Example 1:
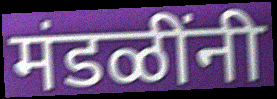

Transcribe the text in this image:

मंडळींनी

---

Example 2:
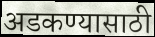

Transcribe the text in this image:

अडकण्यासाठी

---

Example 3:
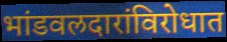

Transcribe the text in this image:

भांडवलदारांविरोधात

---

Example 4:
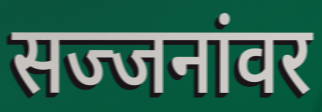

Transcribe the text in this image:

सज्जनांवर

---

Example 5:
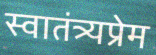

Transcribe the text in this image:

स्वातंत्र्यप्रेम